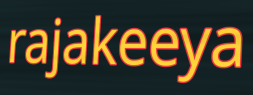
rajakeeya